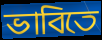
ভাবিতে